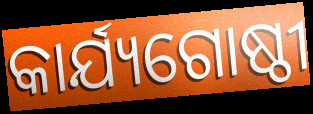
କାର୍ଯ୍ୟଗୋଷ୍ଠୀ